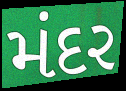
મંદર